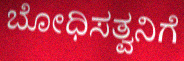
ಬೋಧಿಸತ್ವನಿಗೆ